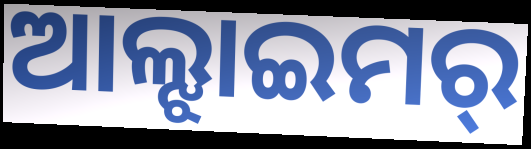
ଆଲ୍ଝାଇମର୍